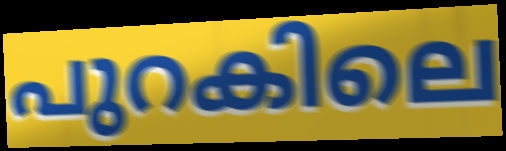
പുറകിലെ